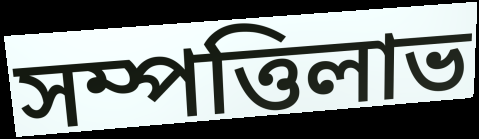
সম্পত্তিলাভ